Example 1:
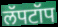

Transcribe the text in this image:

लॅपटॉप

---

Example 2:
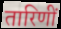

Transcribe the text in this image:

तारिणीं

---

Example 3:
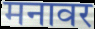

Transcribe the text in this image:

मनावर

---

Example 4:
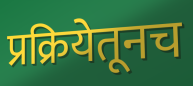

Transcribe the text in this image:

प्रक्रियेतूनच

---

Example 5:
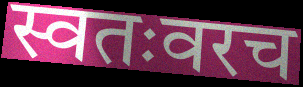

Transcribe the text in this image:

स्वतःवरच